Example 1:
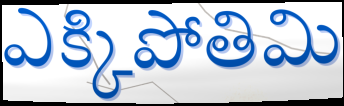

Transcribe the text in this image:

ఎక్కిపోతిమి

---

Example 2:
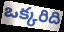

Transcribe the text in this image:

ఒక్కరిది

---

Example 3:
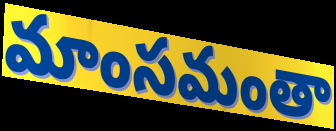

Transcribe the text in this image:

మాంసమంతా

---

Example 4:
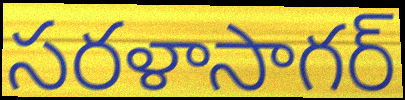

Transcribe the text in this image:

సరళాసాగర్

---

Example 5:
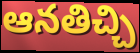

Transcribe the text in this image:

ఆనతిచ్చి